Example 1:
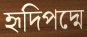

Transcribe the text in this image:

হৃদিপদ্মে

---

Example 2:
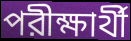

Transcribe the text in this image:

পরীক্ষার্থী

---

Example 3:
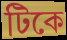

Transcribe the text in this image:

টিকে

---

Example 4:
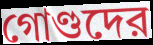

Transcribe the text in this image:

গোণ্ডদের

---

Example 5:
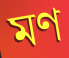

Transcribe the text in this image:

মণ